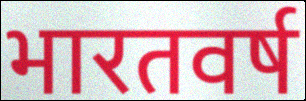
भारतवर्ष